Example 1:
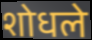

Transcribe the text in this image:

शोधले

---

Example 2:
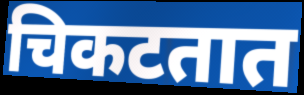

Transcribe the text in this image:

चिकटतात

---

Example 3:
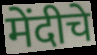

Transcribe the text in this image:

मेंदीचे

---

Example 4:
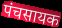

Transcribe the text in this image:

पंचसायक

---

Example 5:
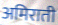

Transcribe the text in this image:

अमिराती